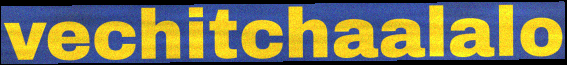
vechitchaalalo